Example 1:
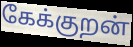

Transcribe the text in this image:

கேக்குறன்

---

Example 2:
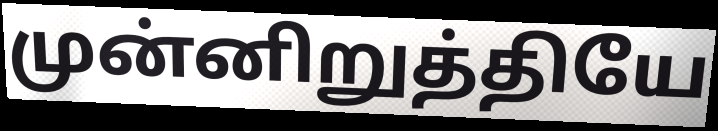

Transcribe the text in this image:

முன்னிறுத்தியே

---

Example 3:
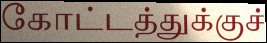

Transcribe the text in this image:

கோட்டத்துக்குச்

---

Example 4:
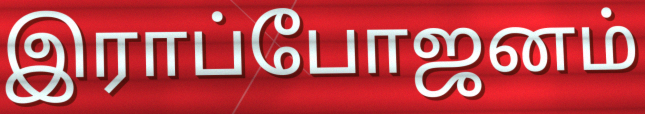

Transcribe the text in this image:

இராப்போஜனம்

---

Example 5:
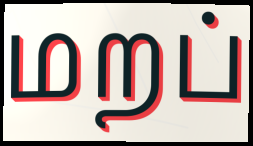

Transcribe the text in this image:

மறப்